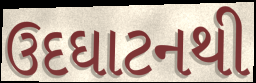
ઉદઘાટનથી